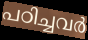
പഠിച്ചവർ